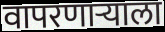
वापरणार्‍याला